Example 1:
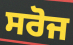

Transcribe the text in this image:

ਸਰੋਜ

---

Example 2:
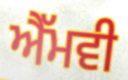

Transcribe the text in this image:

ਐੱਮਵੀ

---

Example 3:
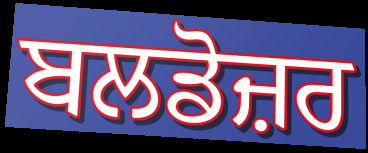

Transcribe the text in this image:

ਬਲਡੋਜ਼ਰ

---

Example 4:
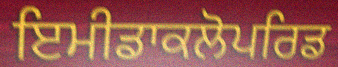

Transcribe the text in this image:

ਇਮੀਡਾਕਲੋਪਰਿਡ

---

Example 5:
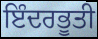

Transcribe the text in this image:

ਇੰਦਰਭੂਤੀ